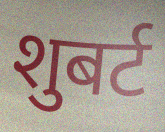
शुबर्ट